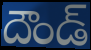
దౌండ్